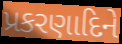
પ્રકરણાદિને